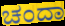
ಚಂದಾ